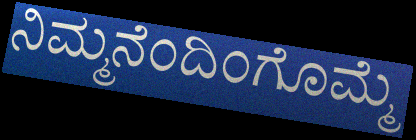
ನಿಮ್ಮನೆಂದಿಂಗೊಮ್ಮೆ